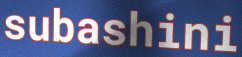
subashini